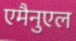
एमैनुएल